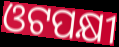
ଓଟପକ୍ଷୀ